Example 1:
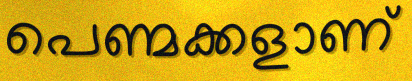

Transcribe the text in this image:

പെണ്മക്കളാണ്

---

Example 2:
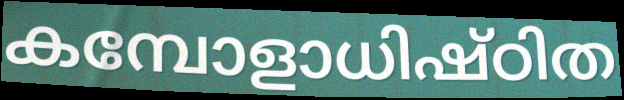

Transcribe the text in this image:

കമ്പോളാധിഷ്ഠിത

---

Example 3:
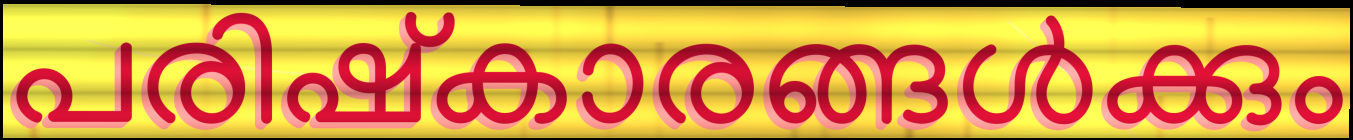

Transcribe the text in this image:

പരിഷ്കാരങ്ങൾക്കും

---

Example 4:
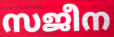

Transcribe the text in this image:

സജീന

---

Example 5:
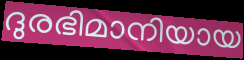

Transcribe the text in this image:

ദുരഭിമാനിയായ